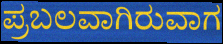
ಪ್ರಬಲವಾಗಿರುವಾಗ